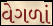
વેગળાં